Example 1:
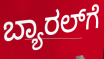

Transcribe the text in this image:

ಬ್ಯಾರಲ್‌ಗೆ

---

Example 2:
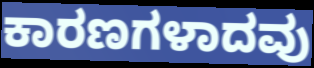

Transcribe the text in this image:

ಕಾರಣಗಳಾದವು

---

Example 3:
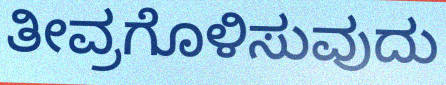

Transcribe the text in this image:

ತೀವ್ರಗೊಳಿಸುವುದು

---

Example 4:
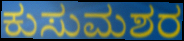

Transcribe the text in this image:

ಕುಸುಮಶರ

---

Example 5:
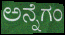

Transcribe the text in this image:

ಅನ್ನೆಗಂ